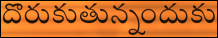
దొరుకుతున్నందుకు